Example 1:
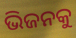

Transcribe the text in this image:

ଭିଜନକୁ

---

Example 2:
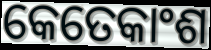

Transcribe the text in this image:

କେତେକାଂଶ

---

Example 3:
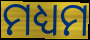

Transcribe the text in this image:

ମଧ୍ୟମ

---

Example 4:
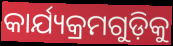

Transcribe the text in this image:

କାର୍ଯ୍ୟକ୍ରମଗୁଡ଼ିକୁ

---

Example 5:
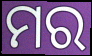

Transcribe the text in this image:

ମର